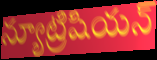
న్యూట్రిషియన్